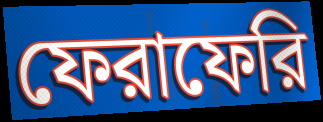
ফেরাফেরি